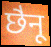
छैनू